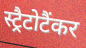
स्ट्रैटोटैंकर